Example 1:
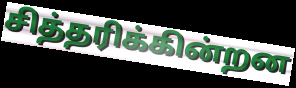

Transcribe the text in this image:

சித்தரிக்கின்றன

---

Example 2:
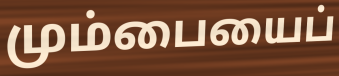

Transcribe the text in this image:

மும்பையைப்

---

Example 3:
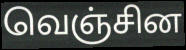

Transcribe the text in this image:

வெஞ்சின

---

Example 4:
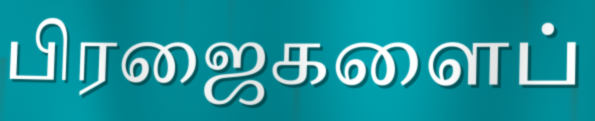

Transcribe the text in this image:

பிரஜைகளைப்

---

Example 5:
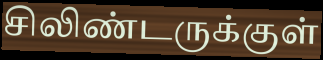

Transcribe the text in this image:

சிலிண்டருக்குள்